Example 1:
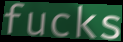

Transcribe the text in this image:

fucks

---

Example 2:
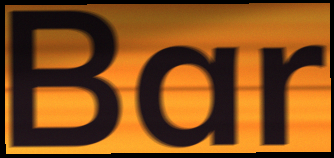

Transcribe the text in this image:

Bar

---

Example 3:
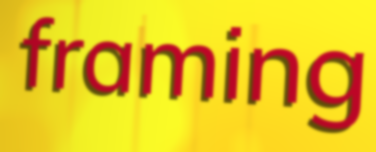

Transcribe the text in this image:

framing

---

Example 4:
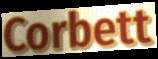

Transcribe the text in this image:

Corbett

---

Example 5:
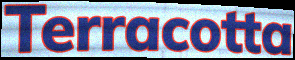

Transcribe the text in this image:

Terracotta